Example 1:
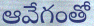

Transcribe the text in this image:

ఆవేగంతో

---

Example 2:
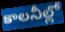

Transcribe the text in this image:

కాలనీల్లో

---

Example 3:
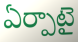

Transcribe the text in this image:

ఏర్పాటై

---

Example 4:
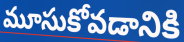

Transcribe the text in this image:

మూసుకోవడానికి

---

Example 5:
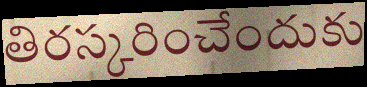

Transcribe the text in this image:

తిరస్కరించేందుకు